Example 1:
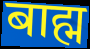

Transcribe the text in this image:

बाह्म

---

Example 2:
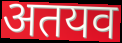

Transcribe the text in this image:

अतयव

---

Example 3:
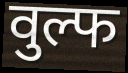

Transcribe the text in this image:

वुल्फ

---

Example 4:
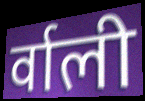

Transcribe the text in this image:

र्वाली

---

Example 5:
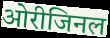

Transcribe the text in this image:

ओरीजिनल